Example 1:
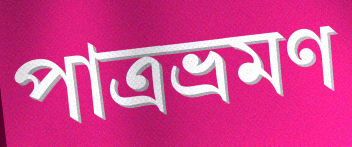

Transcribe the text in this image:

পাত্রভ্রমণ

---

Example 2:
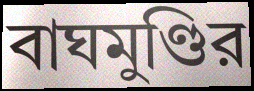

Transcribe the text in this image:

বাঘমুণ্ডির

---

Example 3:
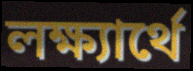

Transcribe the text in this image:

লক্ষ্যার্থে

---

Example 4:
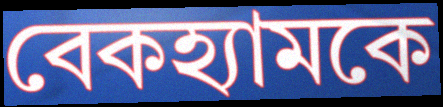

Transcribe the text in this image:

বেকহ্যামকে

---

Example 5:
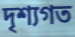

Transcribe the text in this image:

দৃশ্যগত